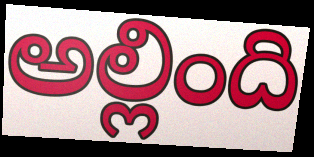
అల్లింది